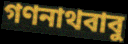
গণনাথবাবু